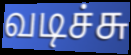
வடிச்சு